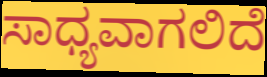
ಸಾಧ್ಯವಾಗಲಿದೆ